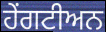
ਹੇਂਗਟੀਅਨ